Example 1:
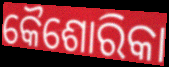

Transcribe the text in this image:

କୈଶୋରିକା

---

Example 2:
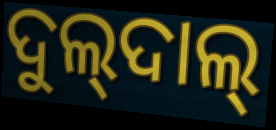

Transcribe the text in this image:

ଦୁଲ୍‍ଦାଲ୍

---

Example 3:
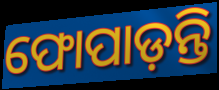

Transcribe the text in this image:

ଫୋପାଡ଼ନ୍ତି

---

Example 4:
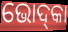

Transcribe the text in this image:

ଭୋଦ୍‌କା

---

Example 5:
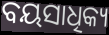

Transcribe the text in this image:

ବୟସାଧିକ୍ୟ